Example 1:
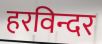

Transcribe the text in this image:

हरविन्दर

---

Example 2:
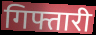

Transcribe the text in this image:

गिफ्तारी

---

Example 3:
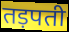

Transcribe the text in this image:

तड़पती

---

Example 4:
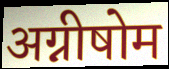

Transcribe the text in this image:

अग्नीषोम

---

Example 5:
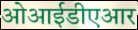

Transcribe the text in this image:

ओआईडीएआर